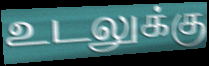
உடலுக்கு